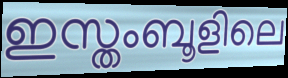
ഇസ്തംബൂളിലെ